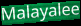
Malayalee